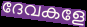
ദേവകളേ